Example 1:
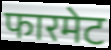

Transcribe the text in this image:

फारमेट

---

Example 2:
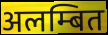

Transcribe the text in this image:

अलम्बित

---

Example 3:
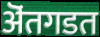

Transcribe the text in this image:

ऄंतगडत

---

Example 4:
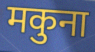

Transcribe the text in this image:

मकुना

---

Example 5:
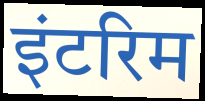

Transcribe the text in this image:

इंटरिम